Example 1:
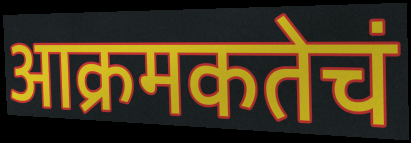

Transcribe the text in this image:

आक्रमकतेचं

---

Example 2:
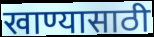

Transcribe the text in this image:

खाण्यासाठी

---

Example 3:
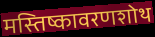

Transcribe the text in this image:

मस्तिष्कावरणशोथ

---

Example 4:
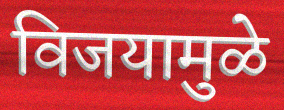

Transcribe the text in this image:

विजयामुळे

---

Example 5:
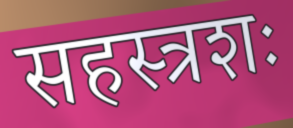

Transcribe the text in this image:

सहस्त्रशः